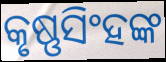
କୃଷ୍ଣସିଂହଙ୍କ